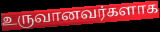
உருவானவர்களாக